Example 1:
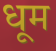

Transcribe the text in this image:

धूम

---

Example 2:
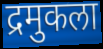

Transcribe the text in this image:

द्रमुकला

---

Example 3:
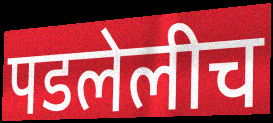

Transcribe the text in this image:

पडलेलीच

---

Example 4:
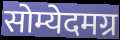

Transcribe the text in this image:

सोम्येदमग्र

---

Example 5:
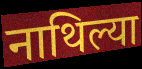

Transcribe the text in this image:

नाथिल्या